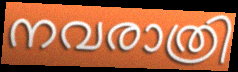
നവരാത്രി